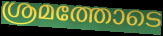
ശ്രമത്തോടെ